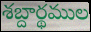
శబ్దార్థముల